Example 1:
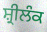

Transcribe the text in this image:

ਸ਼੍ਰੀਲੰਕ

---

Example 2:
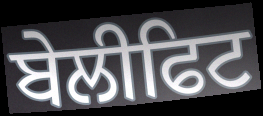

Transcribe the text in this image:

ਬੇਲੀਫਿਟ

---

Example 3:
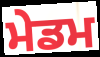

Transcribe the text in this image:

ਮੇਡਮ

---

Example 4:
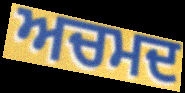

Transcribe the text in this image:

ਅਚਮਦ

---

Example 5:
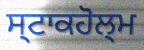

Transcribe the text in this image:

ਸ੍ਟਾਕਹੋਲ੍ਮ